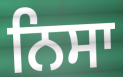
ਨਿਸਾ